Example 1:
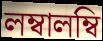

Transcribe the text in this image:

লম্বালম্বি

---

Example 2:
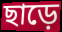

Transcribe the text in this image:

ছাড়ে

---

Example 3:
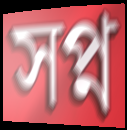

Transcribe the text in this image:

সপ্ন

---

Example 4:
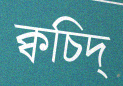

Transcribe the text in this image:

ক্বচিদ্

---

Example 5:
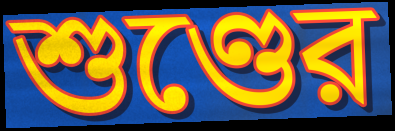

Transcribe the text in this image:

শুণ্ডের